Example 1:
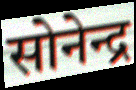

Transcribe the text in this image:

सोनेन्द्र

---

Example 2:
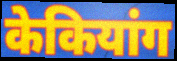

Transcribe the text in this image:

केकियांग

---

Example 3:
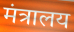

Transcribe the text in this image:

मंत्रालय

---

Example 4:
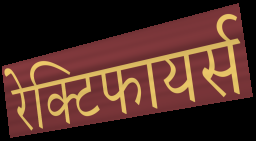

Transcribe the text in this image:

रेक्टिफायर्स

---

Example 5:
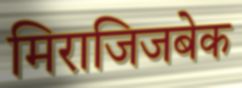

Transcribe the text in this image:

मिराजिजबेक